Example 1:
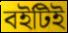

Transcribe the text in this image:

বইটিই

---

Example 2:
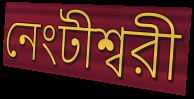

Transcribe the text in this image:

নেংটীশ্বরী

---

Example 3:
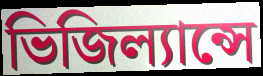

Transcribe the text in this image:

ভিজিল্যান্সে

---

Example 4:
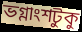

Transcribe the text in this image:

ভগ্নাংশটুকু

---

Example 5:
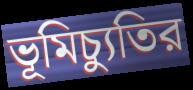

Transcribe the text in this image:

ভূমিচ্যুতির